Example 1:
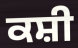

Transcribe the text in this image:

ਕਸ਼ੀ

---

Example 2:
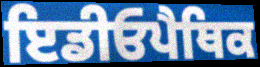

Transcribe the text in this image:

ਇਡੀਓਪੈਥਿਕ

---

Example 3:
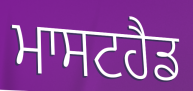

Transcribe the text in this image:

ਮਾਸਟਹੈਡ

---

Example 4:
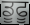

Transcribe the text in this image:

ਡੂਫੂ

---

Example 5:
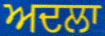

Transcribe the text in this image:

ਅਦਲਾ